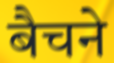
बैचने